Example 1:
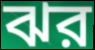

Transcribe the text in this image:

ঝর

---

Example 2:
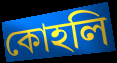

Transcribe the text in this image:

কোহলি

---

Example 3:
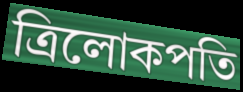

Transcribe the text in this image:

ত্রিলোকপতি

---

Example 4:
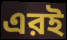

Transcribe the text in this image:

এরই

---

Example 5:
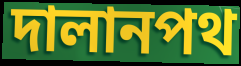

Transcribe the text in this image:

দালানপথ